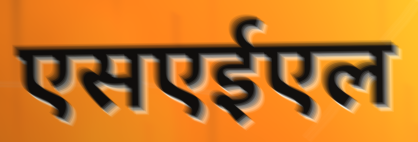
एसएईएल